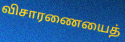
விசாரணையைத்